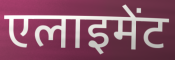
एलाइमेंट